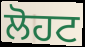
ਲੋਹਟ